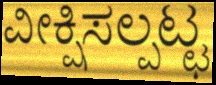
ವೀಕ್ಷಿಸಲ್ಪಟ್ಟ